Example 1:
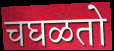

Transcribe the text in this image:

चघळतो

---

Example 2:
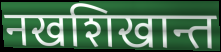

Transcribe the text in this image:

नखशिखान्त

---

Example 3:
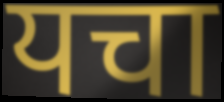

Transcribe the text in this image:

यचा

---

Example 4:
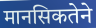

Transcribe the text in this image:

मानसिकतेने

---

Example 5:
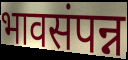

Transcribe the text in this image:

भावसंपन्न